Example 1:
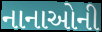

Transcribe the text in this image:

નાનાઓની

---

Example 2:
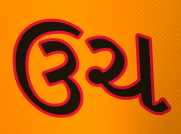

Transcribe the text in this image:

ઉચ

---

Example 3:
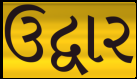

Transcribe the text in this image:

ઉદ્વાર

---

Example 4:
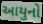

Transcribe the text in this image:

આયુનો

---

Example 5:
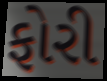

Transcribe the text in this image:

ફોરી